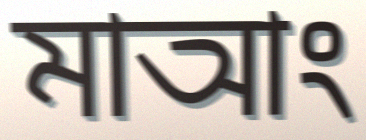
মাআং